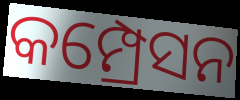
କମ୍ପ୍ରେସନ